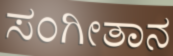
ಸಂಗೀತಾನ